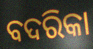
ବଦରିକା